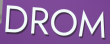
DROM